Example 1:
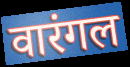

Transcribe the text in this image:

वारंगल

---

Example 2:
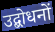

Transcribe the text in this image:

उद्बोधनों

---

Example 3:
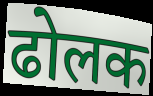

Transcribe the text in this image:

ढोलक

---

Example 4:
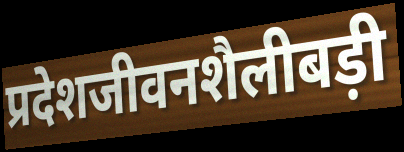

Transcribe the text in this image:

प्रदेशजीवनशैलीबड़ी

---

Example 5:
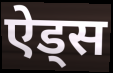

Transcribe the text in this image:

ऐड्स